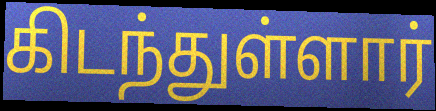
கிடந்துள்ளார்